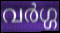
വർഗ്ഗ